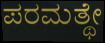
ಪರಮತ್ಥೇ